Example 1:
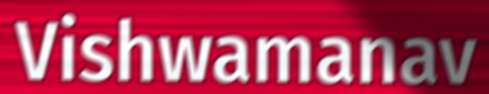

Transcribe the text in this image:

Vishwamanav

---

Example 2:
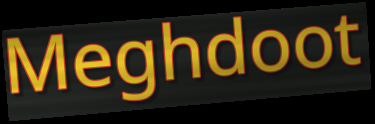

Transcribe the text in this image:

Meghdoot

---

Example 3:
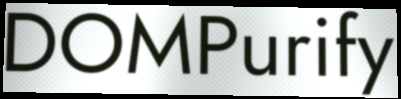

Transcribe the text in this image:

DOMPurify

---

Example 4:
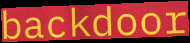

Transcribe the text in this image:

backdoor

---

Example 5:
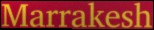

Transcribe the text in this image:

Marrakesh